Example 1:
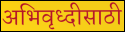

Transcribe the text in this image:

अभिवृध्दीसाठी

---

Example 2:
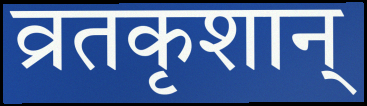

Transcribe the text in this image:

व्रतकृशान्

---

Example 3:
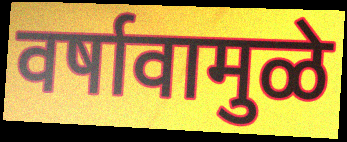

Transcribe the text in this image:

वर्षावामुळे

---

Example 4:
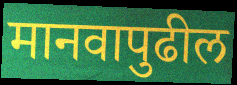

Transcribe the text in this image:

मानवापुढील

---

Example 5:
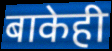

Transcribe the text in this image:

बाकेही